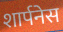
शार्पनेस